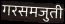
गरसमजुती